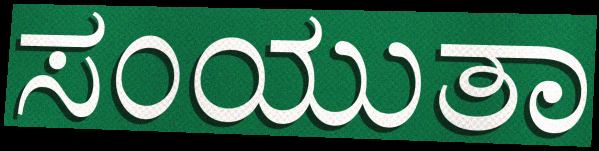
ಸಂಯುತಾ